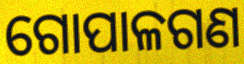
ଗୋପାଳଗଣ